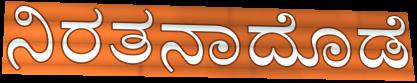
ನಿರತನಾದೊಡೆ